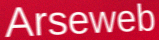
Arseweb